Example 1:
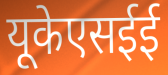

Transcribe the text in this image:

यूकेएसईई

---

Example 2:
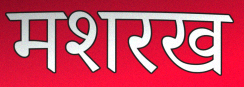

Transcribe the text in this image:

मशरख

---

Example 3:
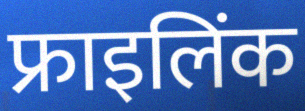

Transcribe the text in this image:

फ्राइलिंक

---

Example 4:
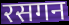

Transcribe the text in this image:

रसगन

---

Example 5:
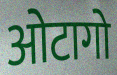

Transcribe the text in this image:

ओटागो